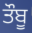
ਤੌਬੂ